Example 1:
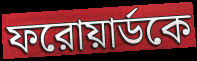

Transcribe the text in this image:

ফরোয়ার্ডকে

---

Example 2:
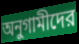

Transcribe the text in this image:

অনুগামীদের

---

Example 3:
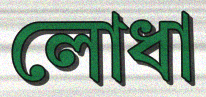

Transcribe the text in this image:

লোধা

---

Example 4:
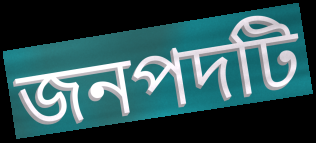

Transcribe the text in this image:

জনপদটি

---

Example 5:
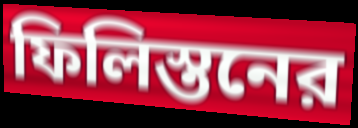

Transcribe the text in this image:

ফিলিস্তনের